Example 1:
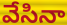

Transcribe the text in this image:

వేసినా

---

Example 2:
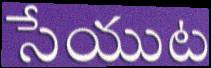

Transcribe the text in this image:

సేయుట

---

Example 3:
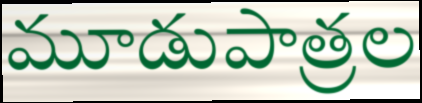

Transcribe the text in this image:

మూడుపాత్రల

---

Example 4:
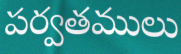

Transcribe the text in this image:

పర్వతములు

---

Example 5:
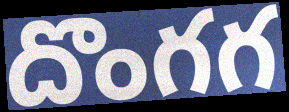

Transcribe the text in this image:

దొంగగ